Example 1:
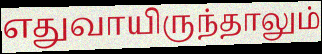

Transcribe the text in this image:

எதுவாயிருந்தாலும்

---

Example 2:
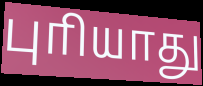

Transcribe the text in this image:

புரியாது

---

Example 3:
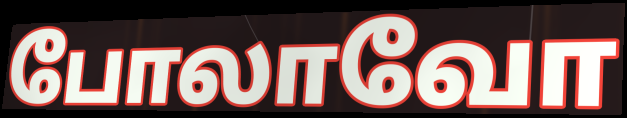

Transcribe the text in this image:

போலாவோ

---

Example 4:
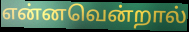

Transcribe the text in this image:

என்னவென்றால்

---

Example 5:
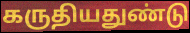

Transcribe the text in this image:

கருதியதுண்டு